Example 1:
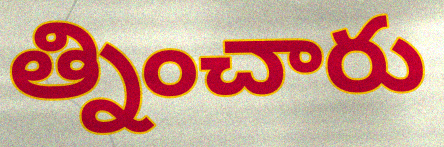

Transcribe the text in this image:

త్నించారు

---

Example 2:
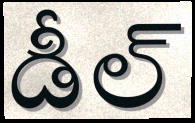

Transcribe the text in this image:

డీల్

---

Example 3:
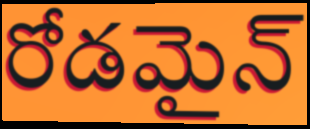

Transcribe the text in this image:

రోడమైన్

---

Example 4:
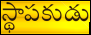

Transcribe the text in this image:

స్థాపకుడు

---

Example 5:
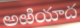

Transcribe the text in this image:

అఱియాద